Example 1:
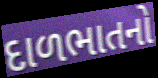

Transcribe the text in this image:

દાળભાતનો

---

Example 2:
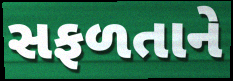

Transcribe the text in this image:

સફળતાને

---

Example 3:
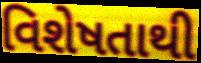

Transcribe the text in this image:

વિશેષતાથી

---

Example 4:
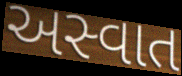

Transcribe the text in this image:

અસ્વાત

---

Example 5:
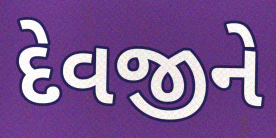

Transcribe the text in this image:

દેવજીને